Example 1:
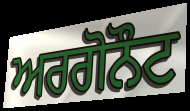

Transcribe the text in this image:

ਅਰਗੋਨੌਟ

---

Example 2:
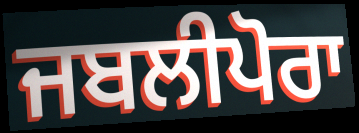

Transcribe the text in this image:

ਜਬਲੀਪੋਰਾ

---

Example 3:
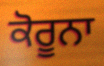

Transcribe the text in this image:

ਕੋਰੂਨਾ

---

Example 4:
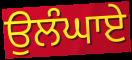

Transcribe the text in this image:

ਉਲੰਘਾਏ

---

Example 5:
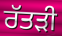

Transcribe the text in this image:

ਰੱਤੜੀ